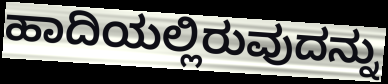
ಹಾದಿಯಲ್ಲಿರುವುದನ್ನು